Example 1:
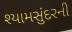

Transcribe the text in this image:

શ્યામસુંદરની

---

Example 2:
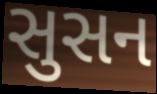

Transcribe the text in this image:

સુસન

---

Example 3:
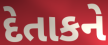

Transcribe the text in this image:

દેતાકને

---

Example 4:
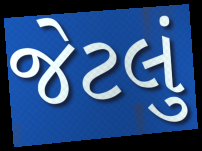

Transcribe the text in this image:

જેટલું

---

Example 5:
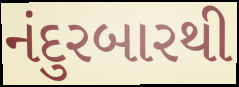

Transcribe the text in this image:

નંદુરબારથી